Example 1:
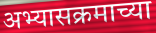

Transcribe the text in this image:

अभ्यासक्रमाच्या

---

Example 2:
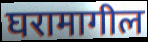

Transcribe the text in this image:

घरामागील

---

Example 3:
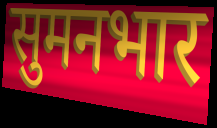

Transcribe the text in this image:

सुमनभार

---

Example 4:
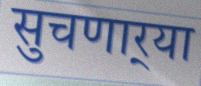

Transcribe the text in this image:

सुचणार्या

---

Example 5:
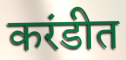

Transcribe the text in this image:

करंडीत